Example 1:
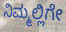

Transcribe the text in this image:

ನಿಮ್ಮಲ್ಲಿಗೇ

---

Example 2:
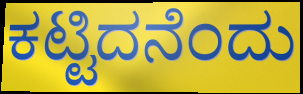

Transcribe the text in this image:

ಕಟ್ಟಿದನೆಂದು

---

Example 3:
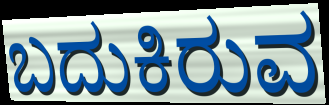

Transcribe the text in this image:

ಬದುಕಿರುವ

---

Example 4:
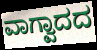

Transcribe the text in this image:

ವಾಗ್ವಾದದ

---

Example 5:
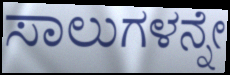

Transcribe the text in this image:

ಸಾಲುಗಳನ್ನೇ